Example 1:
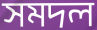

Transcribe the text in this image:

সমদল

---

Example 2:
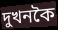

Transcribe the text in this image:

দুখনকৈ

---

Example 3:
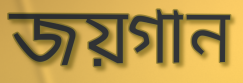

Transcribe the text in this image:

জয়গান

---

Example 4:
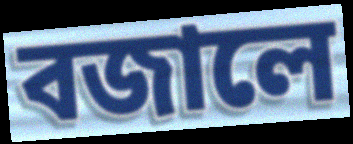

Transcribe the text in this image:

বজালে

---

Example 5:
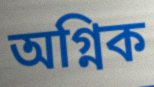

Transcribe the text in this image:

অগ্নিক